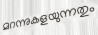
മറന്നുകളയുന്നതും